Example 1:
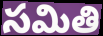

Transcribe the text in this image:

సమితి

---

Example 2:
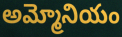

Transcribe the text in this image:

అమ్మోనియం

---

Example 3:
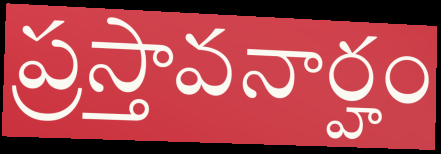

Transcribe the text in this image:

ప్రస్తావనార్హం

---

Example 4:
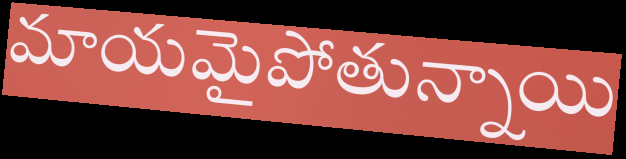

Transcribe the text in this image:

మాయమైపోతున్నాయి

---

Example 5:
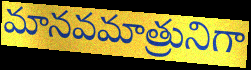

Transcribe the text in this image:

మానవమాత్రునిగా